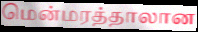
மென்மரத்தாலான